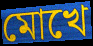
মোখে